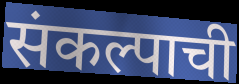
संकल्पाची